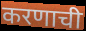
करणाची